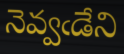
నెవ్వఁడేని